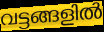
വട്ടങ്ങളിൽ